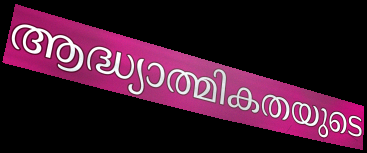
ആദ്ധ്യാത്മികതയുടെ